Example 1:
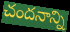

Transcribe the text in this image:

చందనాన్ని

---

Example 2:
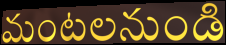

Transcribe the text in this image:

మంటలనుండి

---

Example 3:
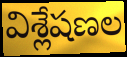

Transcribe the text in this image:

విశ్లేషణల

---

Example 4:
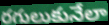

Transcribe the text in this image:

రగులుకునేలా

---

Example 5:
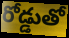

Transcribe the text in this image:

రోడ్డుతో